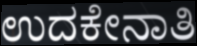
ಉದಕೇನಾತಿ